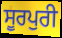
ਸੂਰਪੁਰੀ